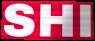
SHI